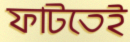
ফাটতেই